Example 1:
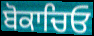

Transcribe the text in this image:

ਬੋਕਾਚਿਓ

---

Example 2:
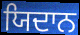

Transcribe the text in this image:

ਯਿਦਾਨ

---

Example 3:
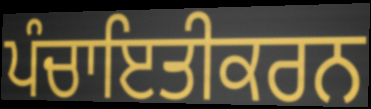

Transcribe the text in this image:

ਪੰਚਾਇਤੀਕਰਨ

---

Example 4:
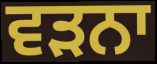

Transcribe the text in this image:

ਵੜਨਾ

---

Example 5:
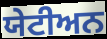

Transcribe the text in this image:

ਯੇਟੀਅਨ